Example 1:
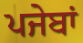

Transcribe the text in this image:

ਪਜੇਬਾਂ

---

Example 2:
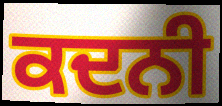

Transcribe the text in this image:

ਕਦਨੀ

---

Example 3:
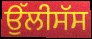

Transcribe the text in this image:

ਉੱਲੀਸੱਸ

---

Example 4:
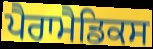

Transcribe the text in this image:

ਪੈਰਾਮੈਡਿਕਸ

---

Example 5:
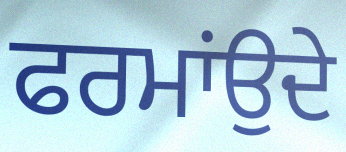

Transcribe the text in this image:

ਫਰਮਾਂਉਦੇ